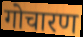
गोचारण